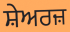
ਸ਼ੇਅਰਜ਼